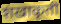
शंखाकृती